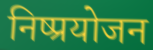
निष्प्रयोजन